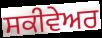
ਸਕੀਵੇਅਰ